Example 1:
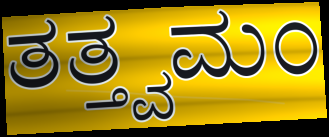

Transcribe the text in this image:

ತತ್ತ್ವಮಂ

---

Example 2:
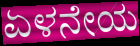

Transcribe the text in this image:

ಏಳನೇಯ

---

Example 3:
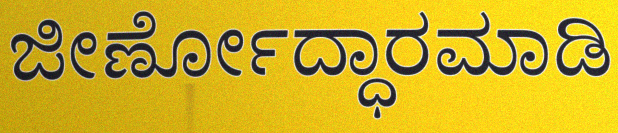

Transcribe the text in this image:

ಜೀರ್ಣೋದ್ಧಾರಮಾಡಿ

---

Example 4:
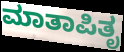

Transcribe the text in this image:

ಮಾತಾಪಿತೃ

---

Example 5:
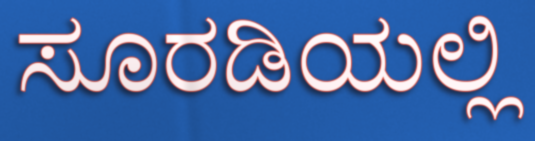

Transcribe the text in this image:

ಸೂರಡಿಯಲ್ಲಿ